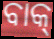
ବାକ୍